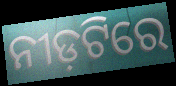
ନୀଡ଼ଟିରେ